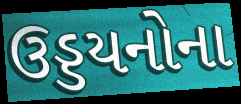
ઉડ્ડયનોના